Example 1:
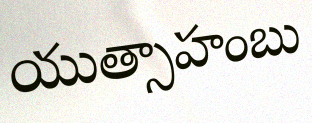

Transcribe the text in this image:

యుత్సాహంబు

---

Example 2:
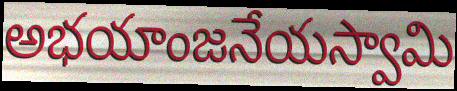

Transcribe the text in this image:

అభయాంజనేయస్వామి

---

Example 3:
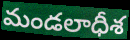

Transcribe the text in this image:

మండలాధీశ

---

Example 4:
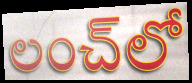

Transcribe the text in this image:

లంచ్‌లో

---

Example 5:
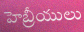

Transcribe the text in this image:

హెబ్రీయులు